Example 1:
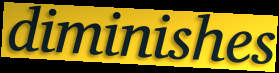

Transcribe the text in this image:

diminishes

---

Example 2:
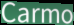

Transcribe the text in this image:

Carmo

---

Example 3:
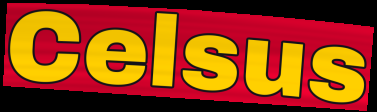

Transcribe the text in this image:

Celsus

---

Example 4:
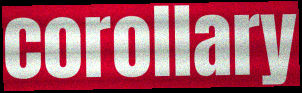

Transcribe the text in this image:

corollary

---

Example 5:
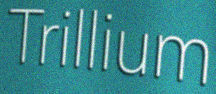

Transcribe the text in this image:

Trillium